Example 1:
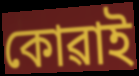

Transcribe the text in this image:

কোৱাই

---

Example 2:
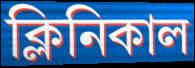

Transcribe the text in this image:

ক্লিনিকাল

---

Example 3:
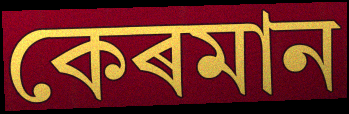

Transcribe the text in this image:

কেৰমান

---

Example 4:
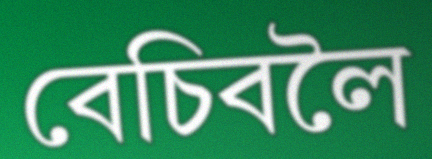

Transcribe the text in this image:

বেচিবলৈ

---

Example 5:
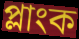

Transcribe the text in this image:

প্লাংক